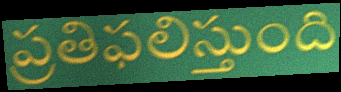
ప్రతిఫలిస్తుంది